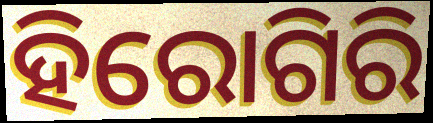
ହିରୋଗିରି